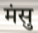
मंसु